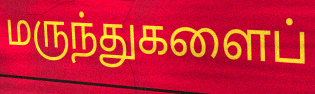
மருந்துகளைப்